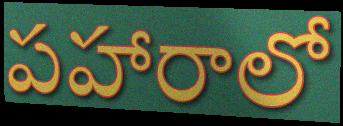
పహారాలో